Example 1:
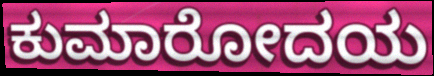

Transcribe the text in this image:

ಕುಮಾರೋದಯ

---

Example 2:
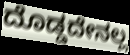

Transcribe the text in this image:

ದೊಡ್ಡದೇನಲ್ಲ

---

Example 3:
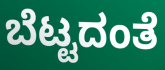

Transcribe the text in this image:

ಬೆಟ್ಟದಂತೆ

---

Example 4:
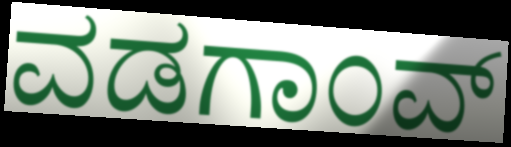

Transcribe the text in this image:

ವಡಗಾಂವ್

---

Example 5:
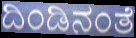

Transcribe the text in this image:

ದಿಂಡಿನಂತೆ